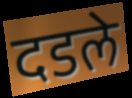
दडले